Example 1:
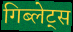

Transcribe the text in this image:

गिब्लेट्स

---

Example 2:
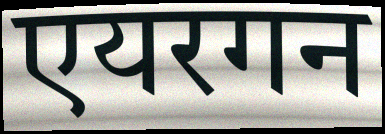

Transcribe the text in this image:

एयरगन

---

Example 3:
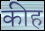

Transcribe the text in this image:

कीह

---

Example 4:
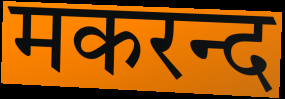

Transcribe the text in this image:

मकरन्द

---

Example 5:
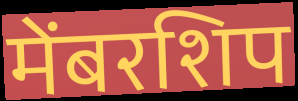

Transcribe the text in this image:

मेंबरशिप